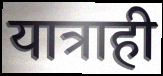
यात्राही